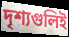
দৃশ্যগুলিই